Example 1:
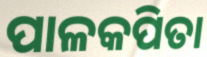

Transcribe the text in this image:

ପାଳକପିତା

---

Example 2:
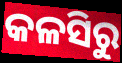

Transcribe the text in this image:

କଳସିରୁ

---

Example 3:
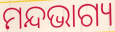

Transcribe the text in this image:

ମନ୍ଦଭାଗ୍ୟ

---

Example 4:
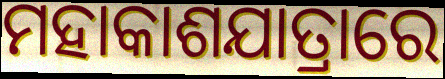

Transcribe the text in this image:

ମହାକାଶଯାତ୍ରାରେ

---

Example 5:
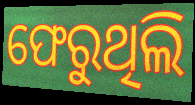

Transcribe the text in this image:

ଫେରୁଥିଲି